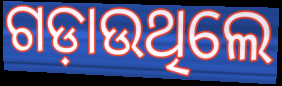
ଗଡ଼ାଉଥିଲେ